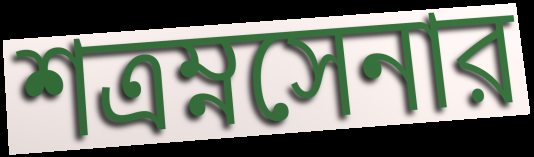
শত্রম্নসেনার